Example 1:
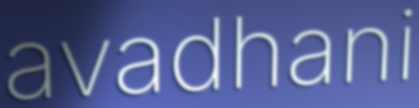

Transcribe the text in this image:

avadhani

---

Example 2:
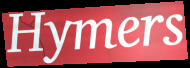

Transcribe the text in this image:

Hymers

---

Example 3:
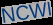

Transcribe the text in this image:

NCWI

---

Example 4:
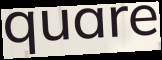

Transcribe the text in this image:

quare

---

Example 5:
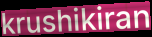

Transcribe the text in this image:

krushikiran